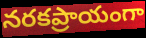
నరకప్రాయంగా